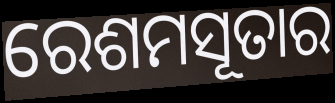
ରେଶମସୂତାର